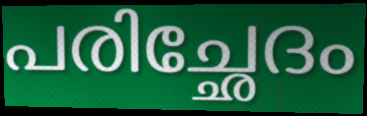
പരിച്ഛേദം